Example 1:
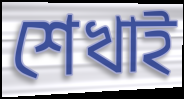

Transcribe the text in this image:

শেখাই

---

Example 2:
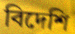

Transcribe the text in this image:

বিদেশি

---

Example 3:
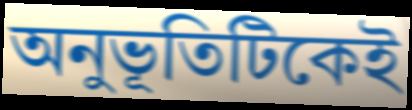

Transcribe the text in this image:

অনুভূতিটিকেই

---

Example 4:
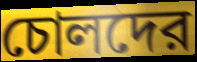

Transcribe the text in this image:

চোলদের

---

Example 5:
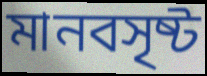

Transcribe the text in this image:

মানবসৃষ্ট